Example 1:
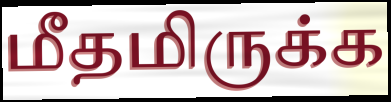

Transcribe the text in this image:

மீதமிருக்க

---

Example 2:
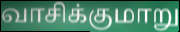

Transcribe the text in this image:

வாசிக்குமாறு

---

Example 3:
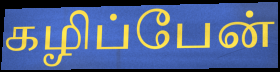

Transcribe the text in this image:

கழிப்பேன்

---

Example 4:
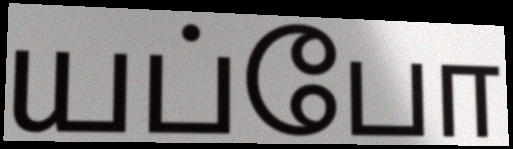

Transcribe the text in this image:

யப்போ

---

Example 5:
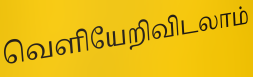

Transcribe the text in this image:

வெளியேறிவிடலாம்